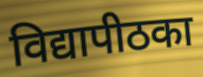
विद्यापीठका